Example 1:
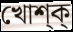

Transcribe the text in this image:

খোশ্ক্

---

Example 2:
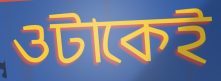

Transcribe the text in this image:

ওটাকেই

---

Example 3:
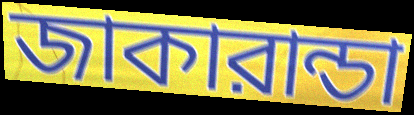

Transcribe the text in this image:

জাকারান্ডা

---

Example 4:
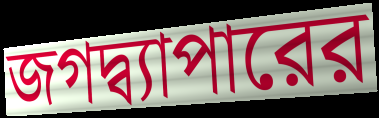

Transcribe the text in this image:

জগদ্ব্যাপারের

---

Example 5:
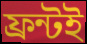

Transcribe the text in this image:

ফ্রন্টই